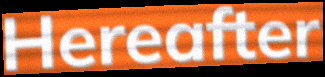
Hereafter